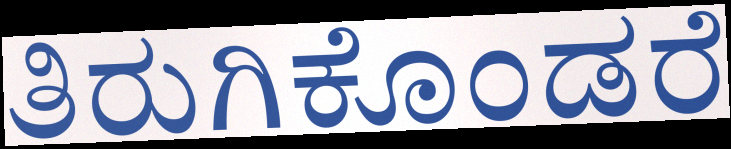
ತಿರುಗಿಕೊಂಡರೆ